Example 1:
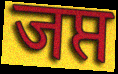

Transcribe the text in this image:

जप्त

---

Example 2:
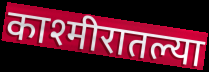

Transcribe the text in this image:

काश्मीरातल्या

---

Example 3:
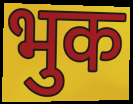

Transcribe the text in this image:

भुक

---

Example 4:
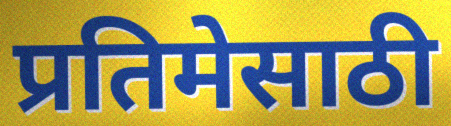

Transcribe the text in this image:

प्रतिमेसाठी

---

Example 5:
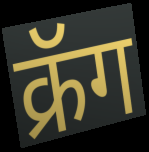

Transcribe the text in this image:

क्रॅग